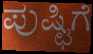
ಪುಷ್ಟಿಗೆ